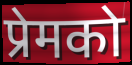
प्रेमको